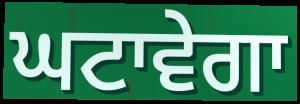
ਘਟਾਵੇਗਾ